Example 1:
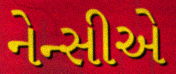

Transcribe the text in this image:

નેન્સીએ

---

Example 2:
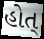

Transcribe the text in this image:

હોત્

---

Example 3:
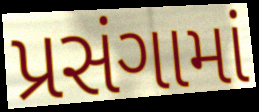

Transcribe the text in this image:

પ્રસંગામાં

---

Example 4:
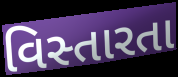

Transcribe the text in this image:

વિસ્તારતા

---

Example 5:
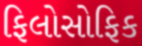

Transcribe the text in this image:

ફિલોસોફિક